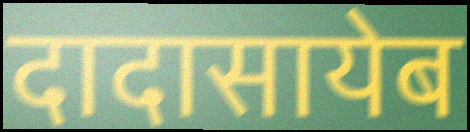
दादासायेब